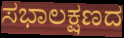
ಸಭಾಲಕ್ಷಣದ